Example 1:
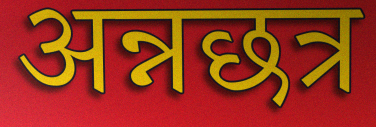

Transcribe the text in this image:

अन्नछत्र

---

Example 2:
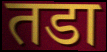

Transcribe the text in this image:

तडा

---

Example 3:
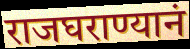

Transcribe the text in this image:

राजघराण्यानं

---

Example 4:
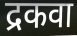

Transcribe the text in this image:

द्रकवा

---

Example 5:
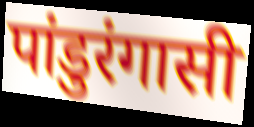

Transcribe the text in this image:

पांडुरंगासी